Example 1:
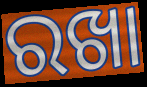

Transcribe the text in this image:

ରଖା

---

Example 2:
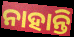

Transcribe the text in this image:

ନାହାନ୍ତି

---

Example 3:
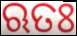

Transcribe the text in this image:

ଋତଃ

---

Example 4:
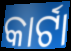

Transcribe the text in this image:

କାର୍ଟା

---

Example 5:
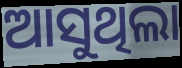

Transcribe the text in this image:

ଆସୁଥିଲା